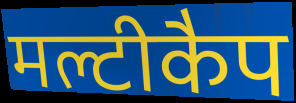
मल्टीकैप